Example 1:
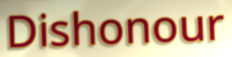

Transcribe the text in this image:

Dishonour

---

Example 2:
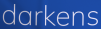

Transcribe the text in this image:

darkens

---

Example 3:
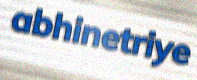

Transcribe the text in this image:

abhinetriye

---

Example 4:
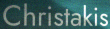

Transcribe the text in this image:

Christakis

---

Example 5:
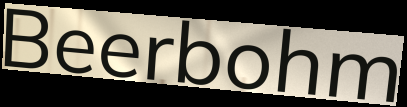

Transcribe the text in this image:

Beerbohm